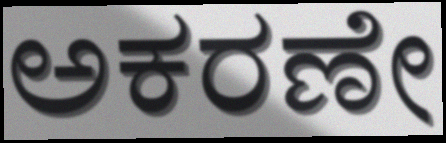
ಅಕರಣೇ